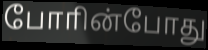
போரின்போது